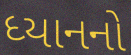
ધ્યાનનો